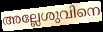
അല്ലേശുവിനെ